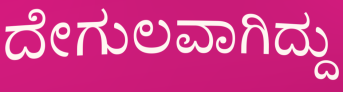
ದೇಗುಲವಾಗಿದ್ದು